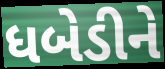
ધબેડીને